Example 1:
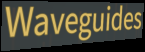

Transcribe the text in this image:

Waveguides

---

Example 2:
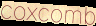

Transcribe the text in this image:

coxcomb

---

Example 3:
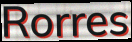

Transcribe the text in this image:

Rorres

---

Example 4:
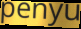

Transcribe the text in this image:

penyu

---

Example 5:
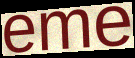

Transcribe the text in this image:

eme